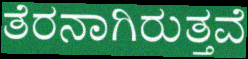
ತೆರನಾಗಿರುತ್ತವೆ